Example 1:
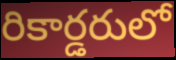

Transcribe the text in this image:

రికార్డరులో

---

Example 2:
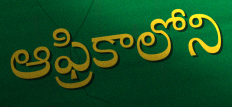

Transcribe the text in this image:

ఆఫ్రికాలోని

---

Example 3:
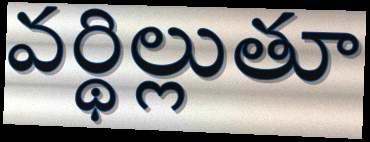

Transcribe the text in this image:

వర్థిల్లుతూ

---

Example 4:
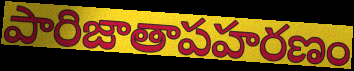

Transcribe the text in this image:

పారిజాతాపహరణం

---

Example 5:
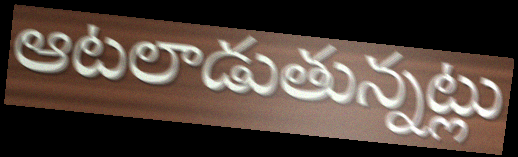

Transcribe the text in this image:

ఆటలాడుతున్నట్లు